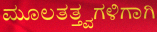
ಮೂಲತತ್ತ್ವಗಳಿಗಾಗಿ